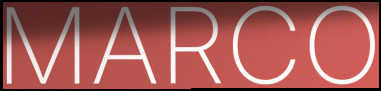
MARCO